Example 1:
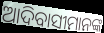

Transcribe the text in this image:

ଆଦିବାସୀମାନଙ୍କ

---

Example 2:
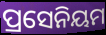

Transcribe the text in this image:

ପ୍ରସେନିୟମ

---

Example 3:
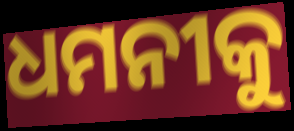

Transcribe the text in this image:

ଧମନୀକୁ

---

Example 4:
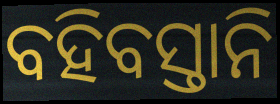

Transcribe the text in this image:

ବହିବସ୍ତାନି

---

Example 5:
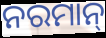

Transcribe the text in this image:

ନରମାନ୍